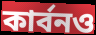
কার্বনও